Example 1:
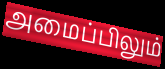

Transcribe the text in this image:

அமைப்பிலும்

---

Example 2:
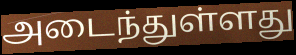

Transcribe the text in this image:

அடைந்துள்ளது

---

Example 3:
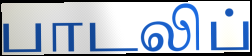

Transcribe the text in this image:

பாடலிப்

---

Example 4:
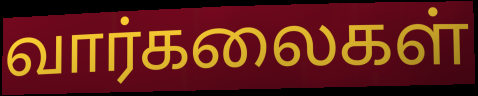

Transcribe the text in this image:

வார்கலைகள்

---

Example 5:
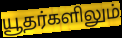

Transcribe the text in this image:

யூதர்களிலும்